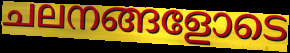
ചലനങ്ങളോടെ